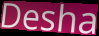
Desha